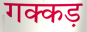
गक्कड़